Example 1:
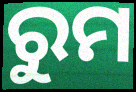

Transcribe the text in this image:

ରୁମ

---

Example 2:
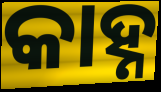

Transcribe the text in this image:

କାହ୍ନ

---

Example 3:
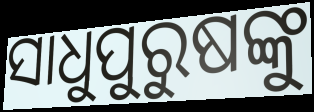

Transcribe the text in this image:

ସାଧୁପୁରୁଷଙ୍କୁ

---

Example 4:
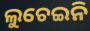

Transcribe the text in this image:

ଲୁଚେଇନି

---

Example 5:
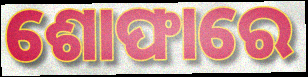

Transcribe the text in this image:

ଶୋଫାରେ